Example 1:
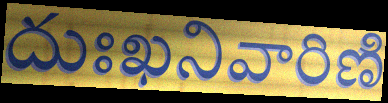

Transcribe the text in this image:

దుఃఖనివారిణి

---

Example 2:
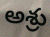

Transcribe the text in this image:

అశ్రు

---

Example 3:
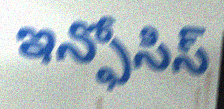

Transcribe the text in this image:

ఇన్ఫోసిస్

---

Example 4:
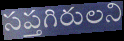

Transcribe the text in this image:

సప్తగిరులని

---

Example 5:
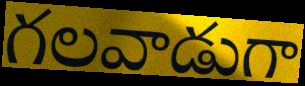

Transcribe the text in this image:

గలవాడుగా